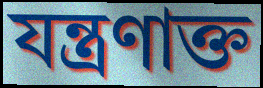
যন্ত্রণাক্ত